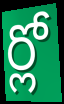
ర్లో